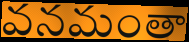
వనమంతా